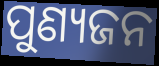
ପୁଣ୍ୟଜନ